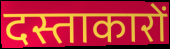
दस्ताकारों